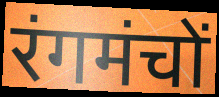
रंगमंचों